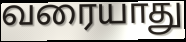
வரையாது